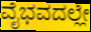
ವೈಭವದಲ್ಲೇ